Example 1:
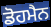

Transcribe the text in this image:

ਡੋਹਮੈਨ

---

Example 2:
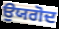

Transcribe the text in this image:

ਉਯਗੋਦ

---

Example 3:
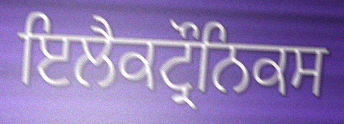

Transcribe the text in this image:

ਇਲੈਕਟ੍ਰੌਨਿਕਸ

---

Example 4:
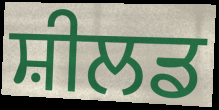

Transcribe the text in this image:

ਸ਼ੀਲਡ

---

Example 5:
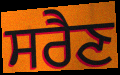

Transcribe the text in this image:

ਸਰੈਣ